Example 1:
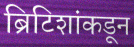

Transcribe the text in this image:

ब्रिटिशांकडून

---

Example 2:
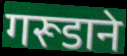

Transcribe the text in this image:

गरूडाने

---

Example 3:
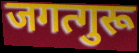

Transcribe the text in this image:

जगत्गुरू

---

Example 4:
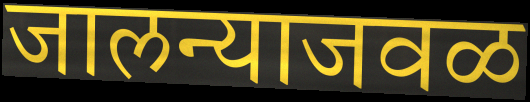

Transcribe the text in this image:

जालन्याजवळ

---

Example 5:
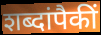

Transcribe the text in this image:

शब्दांपैकीं